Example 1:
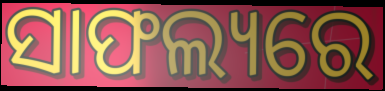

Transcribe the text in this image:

ସାଫଲ୍ୟରେ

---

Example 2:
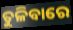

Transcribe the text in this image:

ତୁଳିବାରେ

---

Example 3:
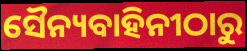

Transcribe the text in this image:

ସୈନ୍ୟବାହିନୀଠାରୁ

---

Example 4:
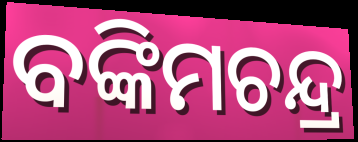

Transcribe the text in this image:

ବଙ୍କିମଚନ୍ଦ୍ର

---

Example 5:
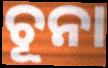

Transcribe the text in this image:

ଚୂନା